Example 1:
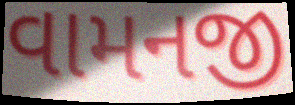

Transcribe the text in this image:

વામનજી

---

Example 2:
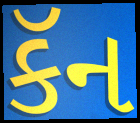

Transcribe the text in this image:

કૅન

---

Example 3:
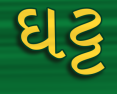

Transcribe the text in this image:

ઘટ્ટ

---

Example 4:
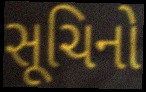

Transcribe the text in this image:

સૂચિનો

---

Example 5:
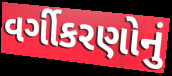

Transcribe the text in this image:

વર્ગીકરણોનું